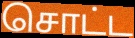
சொட்ட